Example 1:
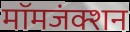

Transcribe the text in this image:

मॉमजंक्शन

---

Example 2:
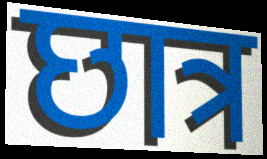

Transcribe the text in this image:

छात्र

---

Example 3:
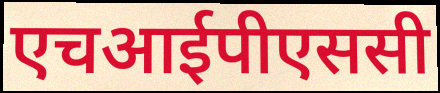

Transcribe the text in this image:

एचआईपीएससी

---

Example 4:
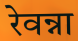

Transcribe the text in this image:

रेवन्ना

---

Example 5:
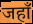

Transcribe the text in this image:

जहाँ